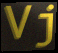
Vj